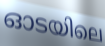
ഓടയിലെ